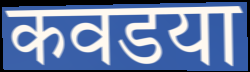
कवडया